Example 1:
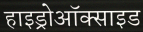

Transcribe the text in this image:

हाइड्रोऑक्साइड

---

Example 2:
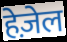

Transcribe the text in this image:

हेज़ेल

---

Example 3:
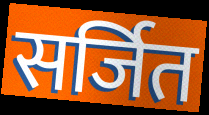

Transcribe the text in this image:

सर्जित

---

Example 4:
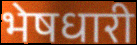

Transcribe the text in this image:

भेषधारी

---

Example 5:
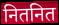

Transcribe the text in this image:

नितनित